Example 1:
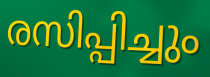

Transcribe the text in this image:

രസിപ്പിച്ചും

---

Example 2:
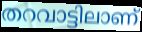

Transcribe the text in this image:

തറവാട്ടിലാണ്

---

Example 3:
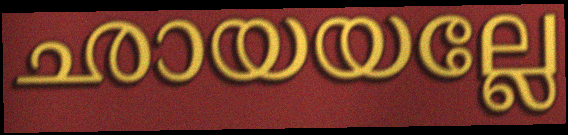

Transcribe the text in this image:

ഛായയല്ലേ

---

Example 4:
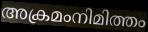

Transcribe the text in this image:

അക്രമംനിമിത്തം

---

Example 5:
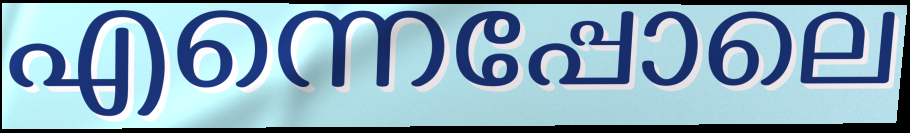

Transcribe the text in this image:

എന്നെപ്പോലെ